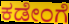
ಕಡೇಂಗೆ